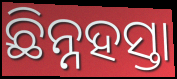
ଛିନ୍ନହସ୍ତା